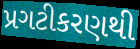
પ્રગટીકરણથી